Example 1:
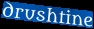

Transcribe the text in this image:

drushtine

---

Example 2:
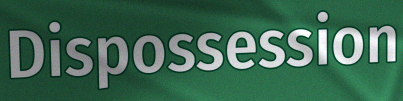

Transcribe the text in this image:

Dispossession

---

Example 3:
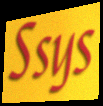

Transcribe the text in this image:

Ssys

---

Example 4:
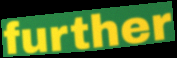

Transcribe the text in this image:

further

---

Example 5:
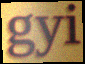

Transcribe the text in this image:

gyi